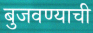
बुजवण्याची